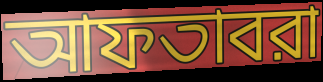
আফতাবরা